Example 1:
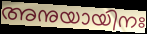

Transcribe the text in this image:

അനുയായിനഃ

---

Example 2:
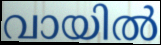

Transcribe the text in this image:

വായിൽ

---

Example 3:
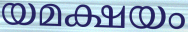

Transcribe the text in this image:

യമക്ഷയം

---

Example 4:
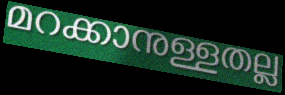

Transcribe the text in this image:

മറക്കാനുള്ളതല്ല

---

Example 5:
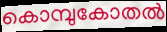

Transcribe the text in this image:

കൊമ്പുകോതൽ